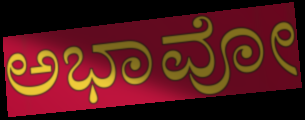
ಅಭಾವೋ